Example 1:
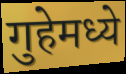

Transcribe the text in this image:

गुहेमध्ये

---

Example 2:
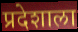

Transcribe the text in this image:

प्रदेशाला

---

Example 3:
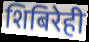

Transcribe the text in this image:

शिबिरेही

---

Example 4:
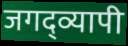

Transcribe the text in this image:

जगद्व्यापी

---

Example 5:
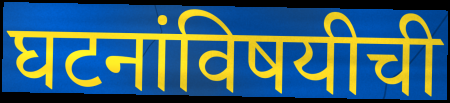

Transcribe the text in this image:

घटनांविषयीची